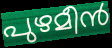
പുഴമീൻ